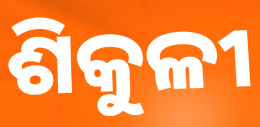
ଶିକୁଳୀ